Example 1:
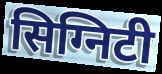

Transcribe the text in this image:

सिग्निटी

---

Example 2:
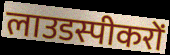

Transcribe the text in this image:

लाउडस्पीकरों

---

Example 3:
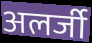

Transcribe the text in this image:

अलर्जी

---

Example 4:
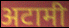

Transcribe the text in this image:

अटामी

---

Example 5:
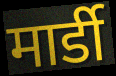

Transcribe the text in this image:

मार्डी